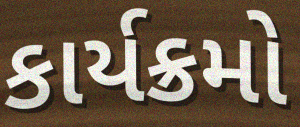
કાર્યક્રમો